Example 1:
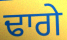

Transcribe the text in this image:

ਢਾਗੇ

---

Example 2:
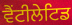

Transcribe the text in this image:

ਵੈਂਟੀਲੇਟਿਡ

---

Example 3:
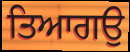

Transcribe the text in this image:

ਤਿਆਗਉ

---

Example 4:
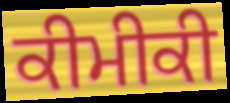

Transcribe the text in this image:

ਕੀਮੀਕੀ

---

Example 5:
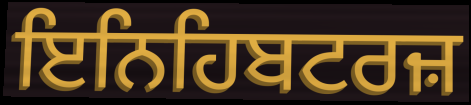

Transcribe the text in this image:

ਇਨਿਹਿਬਟਰਜ਼